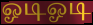
ஓடிஓடி